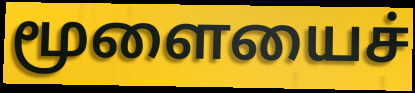
மூளையைச்